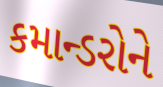
કમાન્ડરોને